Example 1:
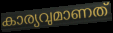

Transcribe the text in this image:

കാര്യവുമാണത്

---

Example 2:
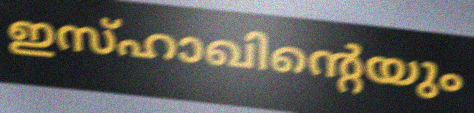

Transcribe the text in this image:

ഇസ്ഹാഖിന്റെയും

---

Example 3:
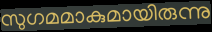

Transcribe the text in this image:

സുഗമമാകുമായിരുന്നു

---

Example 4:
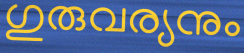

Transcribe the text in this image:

ഗുരുവര്യനും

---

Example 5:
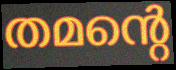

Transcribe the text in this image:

തമന്റെ